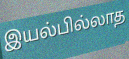
இயல்பில்லாத